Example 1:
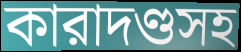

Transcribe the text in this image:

কারাদণ্ডসহ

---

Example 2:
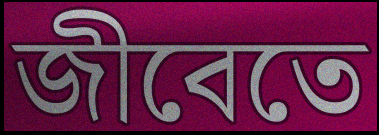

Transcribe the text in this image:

জীবেতে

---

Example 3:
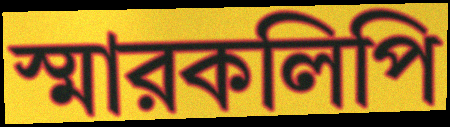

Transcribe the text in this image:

স্মারকলিপি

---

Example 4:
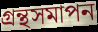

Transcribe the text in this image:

গ্রন্থসমাপন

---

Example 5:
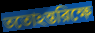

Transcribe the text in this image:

ততোঽন্তরিক্ষে